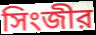
সিংজীর